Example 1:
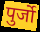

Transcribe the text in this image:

पुर्जो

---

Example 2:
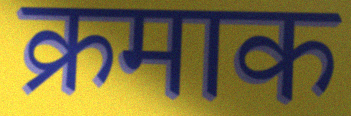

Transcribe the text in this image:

क्रमाक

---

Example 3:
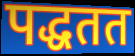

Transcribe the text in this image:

पद्धतत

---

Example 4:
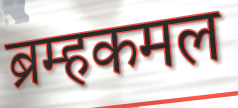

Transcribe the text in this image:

ब्रम्हकमल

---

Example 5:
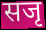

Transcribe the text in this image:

सजृ